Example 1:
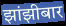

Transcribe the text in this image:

झांझीबार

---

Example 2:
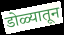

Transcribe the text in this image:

डोळ्यातून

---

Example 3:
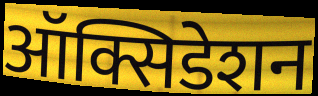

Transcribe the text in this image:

ऑक्सिडेशन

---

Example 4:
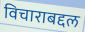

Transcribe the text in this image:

विचाराबद्दल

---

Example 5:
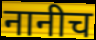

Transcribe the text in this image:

नानीच